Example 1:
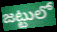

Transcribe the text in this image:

జట్టులో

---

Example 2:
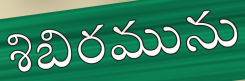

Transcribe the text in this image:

శిబిరమును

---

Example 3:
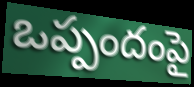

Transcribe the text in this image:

ఒప్పందంపై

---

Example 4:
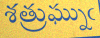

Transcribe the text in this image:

శత్రుఘ్నుఁ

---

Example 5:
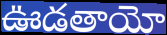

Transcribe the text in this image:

ఊడతాయో